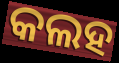
କଲହ